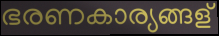
ഭരണകാര്യങ്ങള്